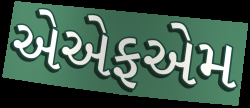
એએફએમ